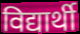
विद्यार्थी